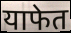
याफेत